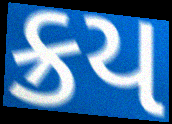
ક્રય